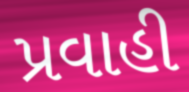
પ્રવાહી